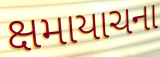
ક્ષમાયાચના